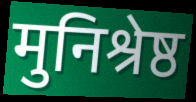
मुनिश्रेष्ठ